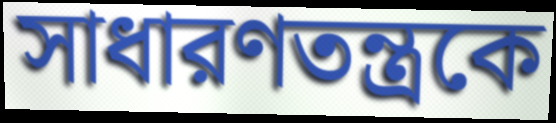
সাধারণতন্ত্রকে